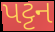
પટ્ટન